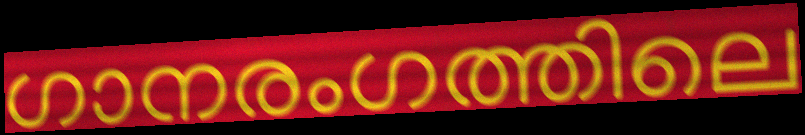
ഗാനരംഗത്തിലെ